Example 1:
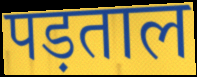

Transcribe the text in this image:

पड़ताल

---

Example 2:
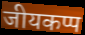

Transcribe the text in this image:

जीयकप्प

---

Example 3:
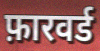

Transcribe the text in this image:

फ़ारवर्ड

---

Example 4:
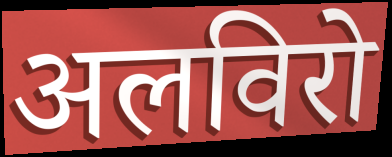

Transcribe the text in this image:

अलविरो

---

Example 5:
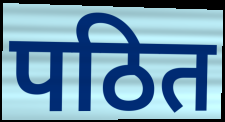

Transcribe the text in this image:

पठित